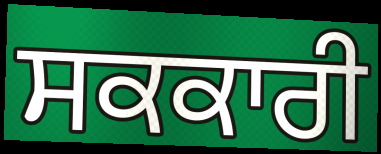
ਸਕਕਾਰੀ